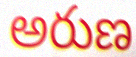
అరుణ